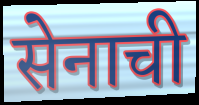
सेनाची